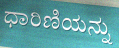
ಧಾರಿಣಿಯನ್ನು